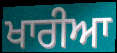
ਖਾਰੀਆ